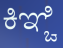
ಕಿಞ್ಚಿ